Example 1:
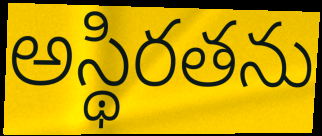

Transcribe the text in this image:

అస్థిరతను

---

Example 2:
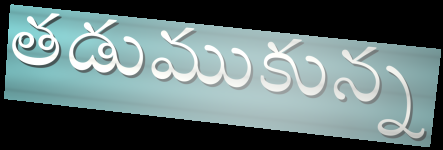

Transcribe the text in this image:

తడుముకున్న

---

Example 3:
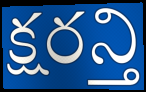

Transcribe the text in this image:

క్షరన్తి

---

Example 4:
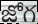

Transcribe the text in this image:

జోగ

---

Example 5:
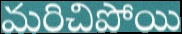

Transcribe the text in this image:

మరిచిపోయి